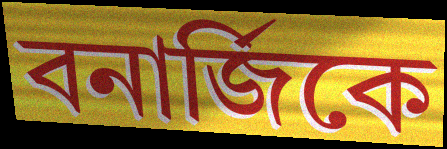
বনার্জিকে